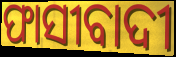
ଫାସୀବାଦୀ